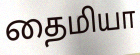
தைமியா